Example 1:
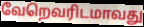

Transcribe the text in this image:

வேறெவரிடமாவது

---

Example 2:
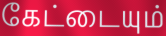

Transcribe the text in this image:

கேட்டையும்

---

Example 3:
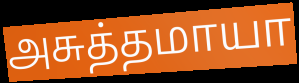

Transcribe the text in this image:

அசுத்தமாயா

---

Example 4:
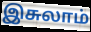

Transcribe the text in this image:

இசுலாம்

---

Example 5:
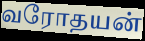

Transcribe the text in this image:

வரோதயன்